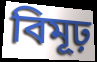
বিমূঢ়